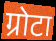
ग्रोटा